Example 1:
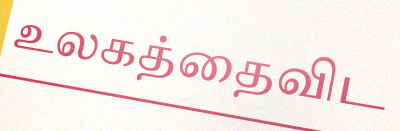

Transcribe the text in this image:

உலகத்தைவிட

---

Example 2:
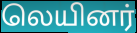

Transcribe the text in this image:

லெயினர்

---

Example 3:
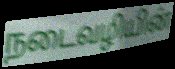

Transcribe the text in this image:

நடைவழியின்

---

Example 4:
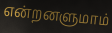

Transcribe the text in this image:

என்றனளுமாம்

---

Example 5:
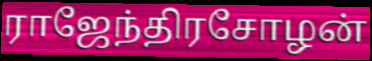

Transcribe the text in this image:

ராஜேந்திரசோழன்